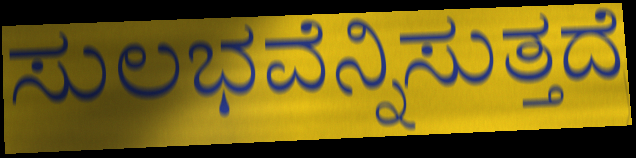
ಸುಲಭವೆನ್ನಿಸುತ್ತದೆ